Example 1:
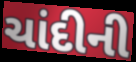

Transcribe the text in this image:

ચાંદીની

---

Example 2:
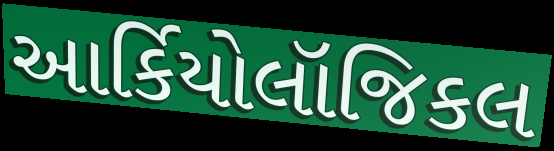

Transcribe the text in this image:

આર્કિયોલૉજિકલ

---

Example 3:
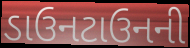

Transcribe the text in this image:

ડાઉનટાઉનની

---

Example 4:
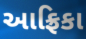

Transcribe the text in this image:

આફ્રિકા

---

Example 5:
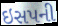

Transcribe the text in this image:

ઇસપની